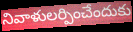
నివాళులర్పించేందుకు